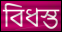
বিধস্ত